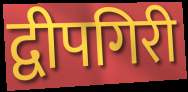
द्वीपगिरी